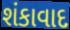
શંકાવાદ